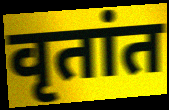
वृतांत